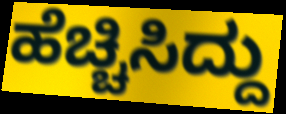
ಹೆಚ್ಚಿಸಿದ್ದು